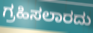
ಗ್ರಹಿಸಲಾರದು